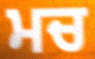
ਮਚ